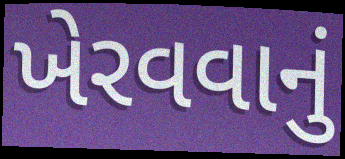
ખેરવવાનું